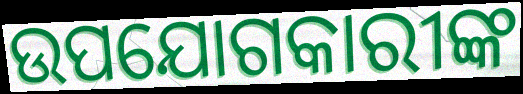
ଉପଯୋଗକାରୀଙ୍କ